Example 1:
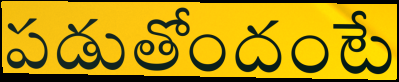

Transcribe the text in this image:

పడుతోందంటే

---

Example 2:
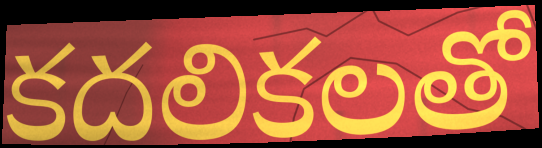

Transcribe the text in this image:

కదలికలతో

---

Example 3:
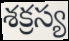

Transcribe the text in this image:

శక్రస్య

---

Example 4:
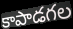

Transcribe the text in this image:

కాపాడగల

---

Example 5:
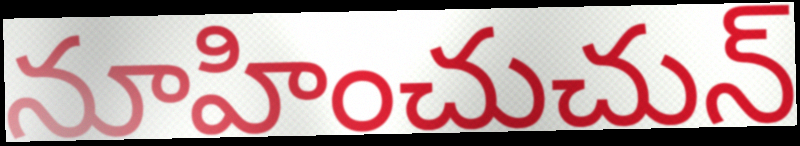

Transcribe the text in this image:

నూహించుచున్